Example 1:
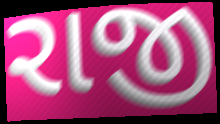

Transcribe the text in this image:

રાજી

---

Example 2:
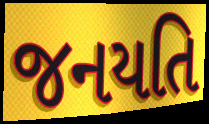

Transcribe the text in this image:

જનયતિ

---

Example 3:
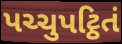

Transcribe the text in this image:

પચ્ચુપટ્ઠિતં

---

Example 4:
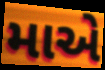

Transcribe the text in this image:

માએ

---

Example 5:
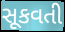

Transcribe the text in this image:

સૂકવતી